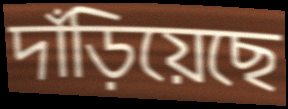
দাঁড়িয়েছে